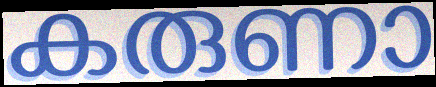
കരുണാ